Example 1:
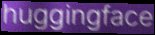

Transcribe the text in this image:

huggingface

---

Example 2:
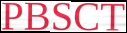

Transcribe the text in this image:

PBSCT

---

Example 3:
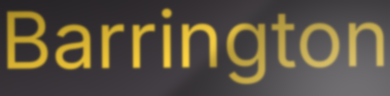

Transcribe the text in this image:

Barrington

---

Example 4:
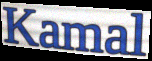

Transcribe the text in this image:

Kamal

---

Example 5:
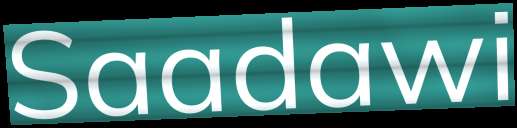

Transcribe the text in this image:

Saadawi